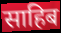
साहिब